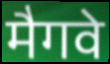
मैगवे